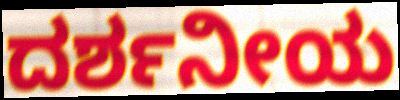
ದರ್ಶನೀಯ